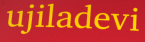
ujiladevi